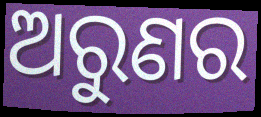
ଅରୁଣର